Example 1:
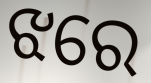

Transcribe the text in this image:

ଝରେ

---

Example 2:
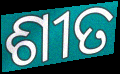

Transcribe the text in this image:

ଶୀତ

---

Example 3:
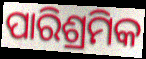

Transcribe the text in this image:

ପାରିଶ୍ରମିକ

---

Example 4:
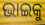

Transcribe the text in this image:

ଭାଇକୁ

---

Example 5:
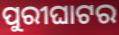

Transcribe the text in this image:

ପୁରୀଘାଟର